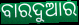
ବାରଦୁଆର